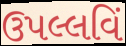
ઉપલ્લવિં